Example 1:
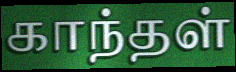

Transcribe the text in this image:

காந்தள்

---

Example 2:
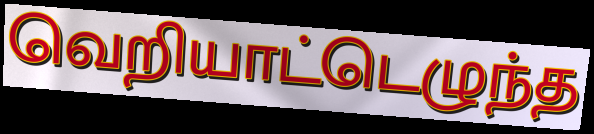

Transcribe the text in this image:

வெறியாட்டெழுந்த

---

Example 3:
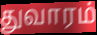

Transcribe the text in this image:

துவாரம்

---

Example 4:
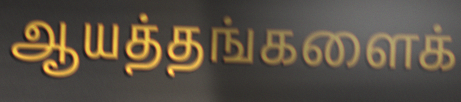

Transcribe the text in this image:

ஆயத்தங்களைக்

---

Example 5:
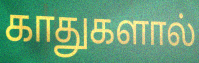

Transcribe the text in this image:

காதுகளால்